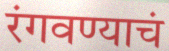
रंगवण्याचं